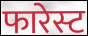
फारेस्‍ट